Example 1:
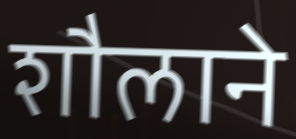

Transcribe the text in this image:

शौलाने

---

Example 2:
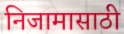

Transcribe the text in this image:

निजामासाठी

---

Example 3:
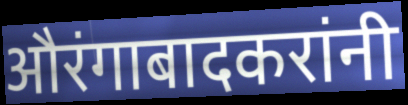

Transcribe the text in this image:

औरंगाबादकरांनी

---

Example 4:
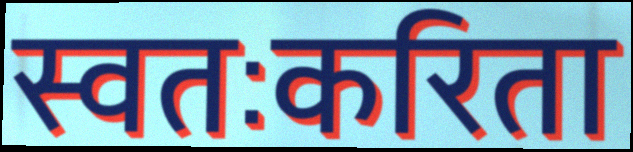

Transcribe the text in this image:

स्वतःकरिता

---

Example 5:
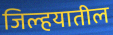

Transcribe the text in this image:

जिल्हयातील